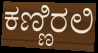
ಕಣ್ಣಿರಲಿ